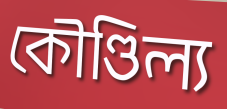
কৌণ্ডিল্য